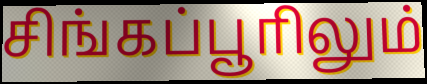
சிங்கப்பூரிலும்